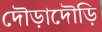
দৌড়াদৌড়ি